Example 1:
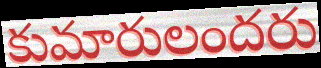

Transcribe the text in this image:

కుమారులందరు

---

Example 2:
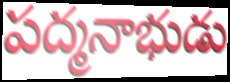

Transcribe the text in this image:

పద్మనాభుడు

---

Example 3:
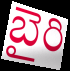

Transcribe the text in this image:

బైరి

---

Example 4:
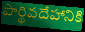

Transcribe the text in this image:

పార్థివదేహానికి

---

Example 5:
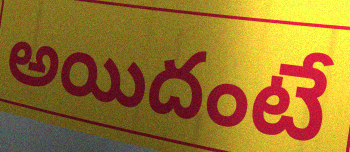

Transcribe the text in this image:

అయిదంటే